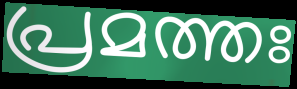
പ്രമത്തഃ